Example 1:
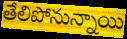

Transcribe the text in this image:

తేలిపోనున్నాయి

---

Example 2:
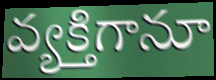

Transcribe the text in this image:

వ్యక్తిగానూ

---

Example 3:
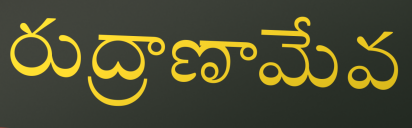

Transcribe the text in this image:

రుద్రాణామేవ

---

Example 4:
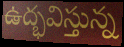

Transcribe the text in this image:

ఉద్భవిస్తున్న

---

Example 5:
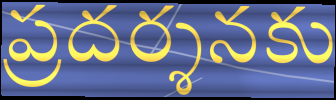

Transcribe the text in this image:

ప్రదర్శనకు